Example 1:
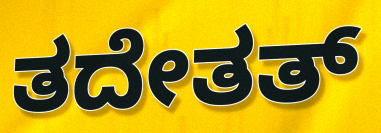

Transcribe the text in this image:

ತದೇತತ್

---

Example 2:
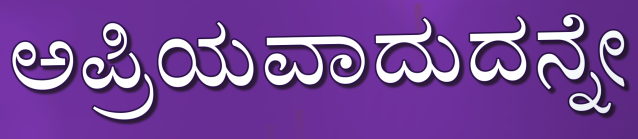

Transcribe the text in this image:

ಅಪ್ರಿಯವಾದುದನ್ನೇ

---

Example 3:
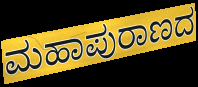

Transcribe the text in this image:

ಮಹಾಪುರಾಣದ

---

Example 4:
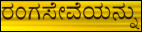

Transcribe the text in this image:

ರಂಗಸೇವೆಯನ್ನು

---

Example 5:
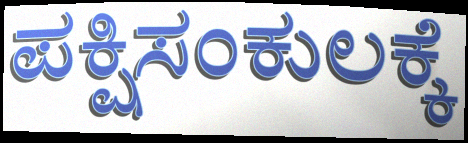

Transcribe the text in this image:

ಪಕ್ಷಿಸಂಕುಲಕ್ಕೆ